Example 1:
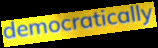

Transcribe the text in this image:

democratically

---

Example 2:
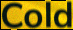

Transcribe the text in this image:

Cold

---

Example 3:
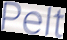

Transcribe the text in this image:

Pelt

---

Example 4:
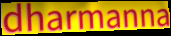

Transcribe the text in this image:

dharmanna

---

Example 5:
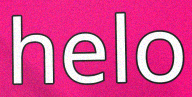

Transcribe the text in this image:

helo